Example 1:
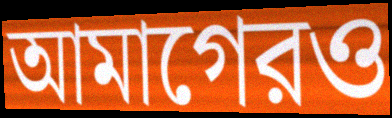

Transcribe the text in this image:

আমাগেরও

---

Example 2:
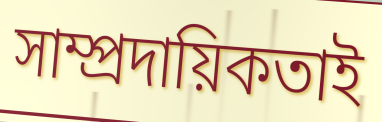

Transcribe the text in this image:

সাম্প্রদায়িকতাই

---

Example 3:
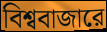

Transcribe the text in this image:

বিশ্ববাজারে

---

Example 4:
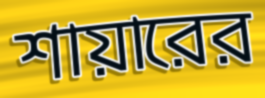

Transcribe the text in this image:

শায়ারের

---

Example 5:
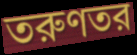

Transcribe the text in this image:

তরুণতর